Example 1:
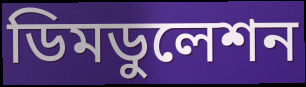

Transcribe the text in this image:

ডিমডুলেশন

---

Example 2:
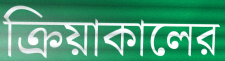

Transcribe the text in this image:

ক্রিয়াকালের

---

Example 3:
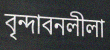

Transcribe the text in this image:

বৃন্দাবনলীলা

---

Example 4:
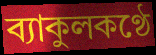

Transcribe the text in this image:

ব্যাকুলকণ্ঠে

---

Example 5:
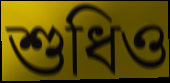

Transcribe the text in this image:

শুধিও